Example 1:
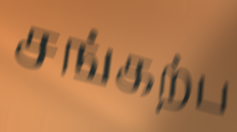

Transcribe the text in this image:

சங்கற்ப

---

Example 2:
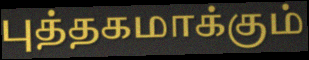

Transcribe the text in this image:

புத்தகமாக்கும்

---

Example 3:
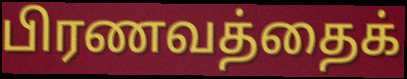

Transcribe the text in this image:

பிரணவத்தைக்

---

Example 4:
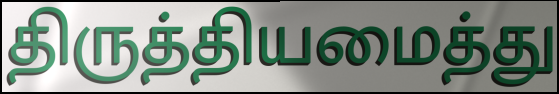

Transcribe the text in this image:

திருத்தியமைத்து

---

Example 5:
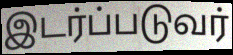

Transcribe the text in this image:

இடர்ப்படுவர்